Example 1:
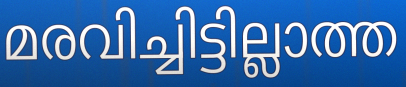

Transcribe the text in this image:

മരവിച്ചിട്ടില്ലാത്ത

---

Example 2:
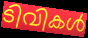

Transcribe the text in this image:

ടിവികൾ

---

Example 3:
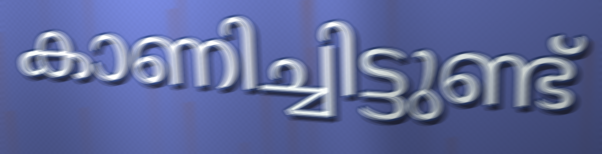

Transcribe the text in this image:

കാണിച്ചിട്ടുണ്ട്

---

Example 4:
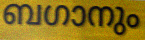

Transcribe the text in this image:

ബഗാനും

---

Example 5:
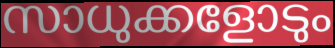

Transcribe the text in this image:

സാധുക്കളോടും